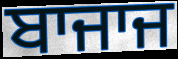
ਬਾਜਾਜ